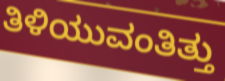
ತಿಳಿಯುವಂತಿತ್ತು